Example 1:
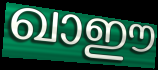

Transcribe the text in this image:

ഖാഈ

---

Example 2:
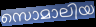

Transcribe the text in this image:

സൊമാലിയ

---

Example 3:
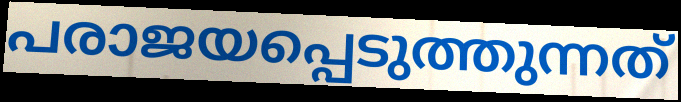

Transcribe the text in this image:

പരാജയപ്പെടുത്തുന്നത്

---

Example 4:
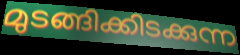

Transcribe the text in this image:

മുടങ്ങിക്കിടക്കുന്ന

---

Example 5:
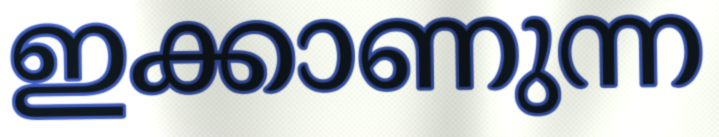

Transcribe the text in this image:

ഇക്കാണുന്ന